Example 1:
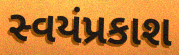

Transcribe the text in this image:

સ્વયંપ્રકાશ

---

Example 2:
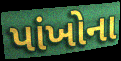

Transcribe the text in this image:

પાંખોના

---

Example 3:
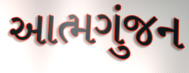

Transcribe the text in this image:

આત્મગુંજન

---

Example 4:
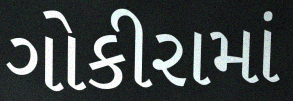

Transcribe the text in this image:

ગોકીરામાં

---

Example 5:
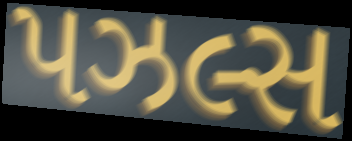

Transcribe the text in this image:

પઝલ્સ